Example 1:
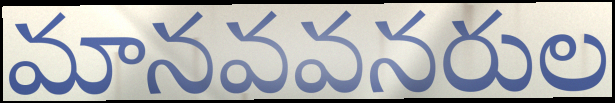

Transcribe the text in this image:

మానవవనరుల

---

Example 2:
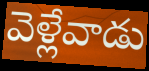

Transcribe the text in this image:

వెళ్లేవాడు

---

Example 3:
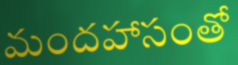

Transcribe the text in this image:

మందహాసంతో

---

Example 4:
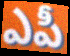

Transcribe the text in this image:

ఎపీ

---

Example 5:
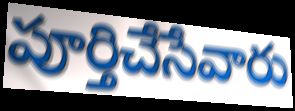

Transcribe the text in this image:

పూర్తిచేసేవారు